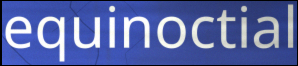
equinoctial